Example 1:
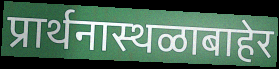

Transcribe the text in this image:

प्रार्थनास्थळाबाहेर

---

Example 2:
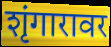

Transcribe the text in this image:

शृंगारावर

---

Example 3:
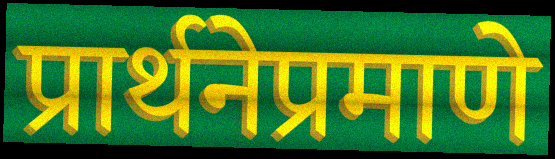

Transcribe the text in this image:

प्रार्थनेप्रमाणे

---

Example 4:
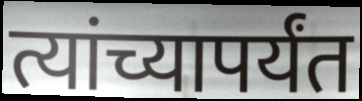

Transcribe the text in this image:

त्यांच्यापर्यंत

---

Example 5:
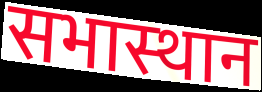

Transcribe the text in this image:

सभास्थान